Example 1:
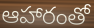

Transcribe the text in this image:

ఆహారంతో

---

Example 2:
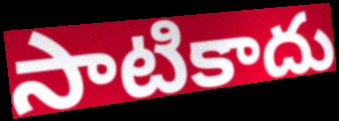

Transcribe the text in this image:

సాటికాదు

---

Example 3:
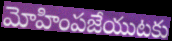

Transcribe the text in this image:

మోహింపజేయుటకు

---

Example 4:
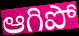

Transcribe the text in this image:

ఆగిపో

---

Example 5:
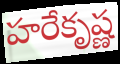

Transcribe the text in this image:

హరేకృష్ణ